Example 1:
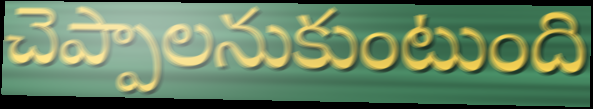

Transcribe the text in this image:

చెప్పాలనుకుంటుంది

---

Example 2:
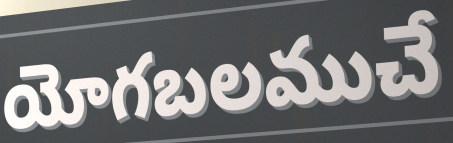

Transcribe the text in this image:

యోగబలముచే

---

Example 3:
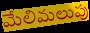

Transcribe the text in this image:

మేలిమలుపు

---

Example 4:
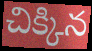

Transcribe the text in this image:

చిక్కిన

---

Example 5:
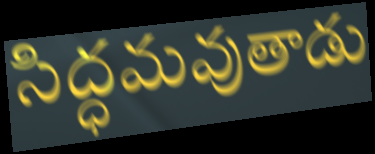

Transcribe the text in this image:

సిద్ధమవుతాడు